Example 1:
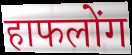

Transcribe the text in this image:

हाफलोंग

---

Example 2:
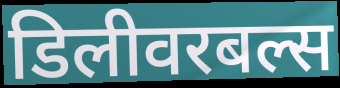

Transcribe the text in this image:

डिलीवरबल्स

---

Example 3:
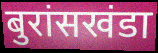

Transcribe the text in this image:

बुरांसखंडा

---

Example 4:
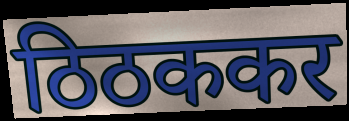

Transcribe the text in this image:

ठिठककर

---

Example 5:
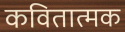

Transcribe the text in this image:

कवितात्मक